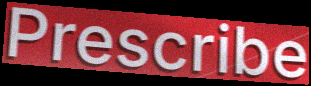
Prescribe